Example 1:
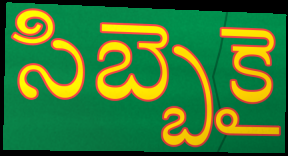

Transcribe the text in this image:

సిబ్బెకై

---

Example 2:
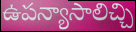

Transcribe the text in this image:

ఉపన్యాసాలిచ్చి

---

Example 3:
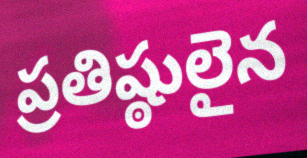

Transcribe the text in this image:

ప్రతిష్ఠులైన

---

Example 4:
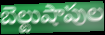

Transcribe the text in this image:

బెల్టుషాపుల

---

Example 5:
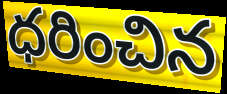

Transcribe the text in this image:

ధరించిన